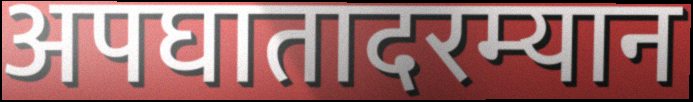
अपघातादरम्यान